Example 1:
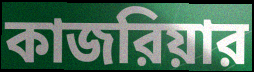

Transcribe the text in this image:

কাজরিয়ার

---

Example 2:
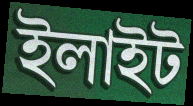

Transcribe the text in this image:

ইলাইট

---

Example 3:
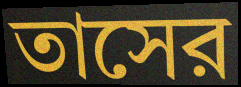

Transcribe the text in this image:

তাসের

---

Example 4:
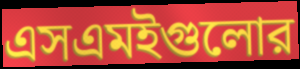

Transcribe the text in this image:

এসএমইগুলোর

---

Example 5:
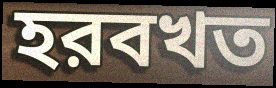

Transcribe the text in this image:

হরবখত